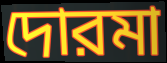
দোরমা